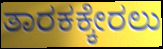
ತಾರಕಕ್ಕೇರಲು